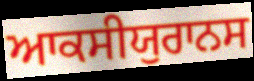
ਆਕਸੀਯੁਰਾਨਸ